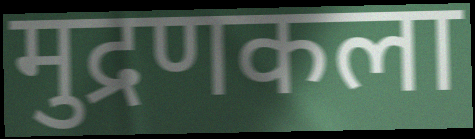
मुद्रणकला